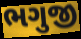
ભગુજી